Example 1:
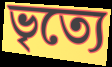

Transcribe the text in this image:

ভৃত্যে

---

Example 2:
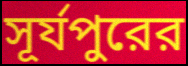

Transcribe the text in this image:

সূর্যপুরের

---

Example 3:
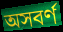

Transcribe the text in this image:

অসবর্ণ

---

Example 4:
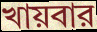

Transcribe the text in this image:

খায়বার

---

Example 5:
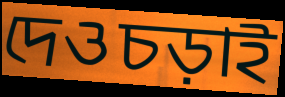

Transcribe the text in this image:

দেওচড়াই